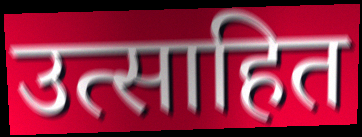
उत्साहित